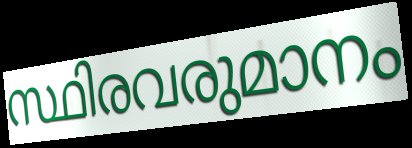
സ്ഥിരവരുമാനം